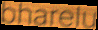
bharelu